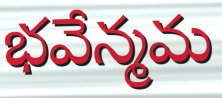
భవేన్మమ